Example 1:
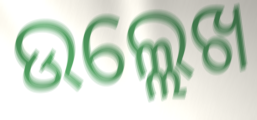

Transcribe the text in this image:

ଉଲ୍ଲେଖ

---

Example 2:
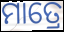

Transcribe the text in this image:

ମାତ୍ରେ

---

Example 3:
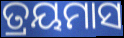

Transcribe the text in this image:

ତ୍ରୟମାସ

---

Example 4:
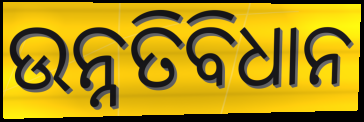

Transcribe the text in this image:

ଉନ୍ନତିବିଧାନ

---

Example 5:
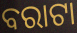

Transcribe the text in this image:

ବରାଟା